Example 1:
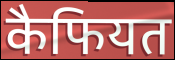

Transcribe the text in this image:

कैफियत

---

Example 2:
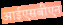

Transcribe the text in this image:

आईएसबीएन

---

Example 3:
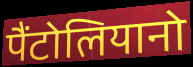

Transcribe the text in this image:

पैंटोलियानो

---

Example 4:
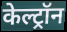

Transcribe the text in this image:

केल्ट्रॉन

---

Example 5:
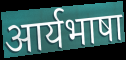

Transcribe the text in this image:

आर्यभाषा